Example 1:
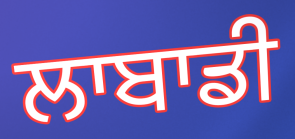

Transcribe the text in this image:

ਲਾਬਾਡੀ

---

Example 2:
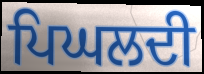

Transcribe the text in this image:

ਪਿਘਲਦੀ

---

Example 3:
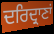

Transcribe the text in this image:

ਦਰਿਦ੍ਰਾਣਾਂ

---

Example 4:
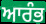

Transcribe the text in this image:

ਆਰੰਭ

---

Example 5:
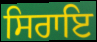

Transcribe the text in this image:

ਸਿਰਾਇ